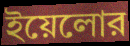
ইয়েলোর